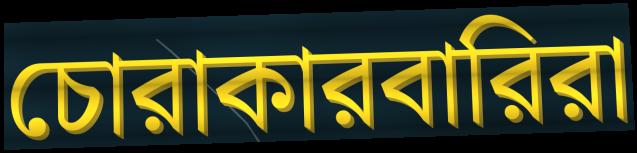
চোরাকারবারিরা